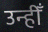
उन्हीँ